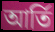
আর্তি